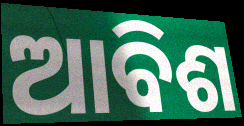
ଆବିଶ